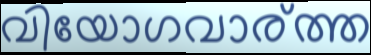
വിയോഗവാര്ത്ത